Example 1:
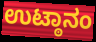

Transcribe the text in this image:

ಉಟ್ಠಾನಂ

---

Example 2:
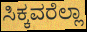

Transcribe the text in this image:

ಸಿಕ್ಕವರೆಲ್ಲಾ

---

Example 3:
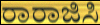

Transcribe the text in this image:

ರಾರಾಜಿಸಿ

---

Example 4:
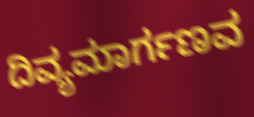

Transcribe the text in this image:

ದಿವ್ಯಮಾರ್ಗಣವ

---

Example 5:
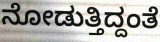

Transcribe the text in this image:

ನೋಡುತ್ತಿದ್ದಂತೆ